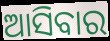
ଆସିବାର